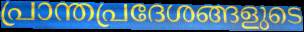
പ്രാന്തപ്രദേശങ്ങളുടെ